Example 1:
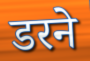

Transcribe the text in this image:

डरने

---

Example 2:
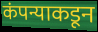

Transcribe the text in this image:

कंपन्याकडून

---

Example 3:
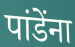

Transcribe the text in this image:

पांडेंना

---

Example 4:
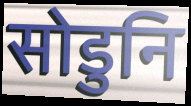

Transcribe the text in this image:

सोडुनि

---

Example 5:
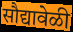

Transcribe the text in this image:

सौद्यावेळी